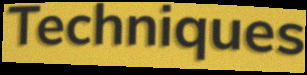
Techniques